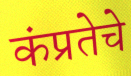
कंप्रतेचे